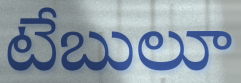
టేబులూ